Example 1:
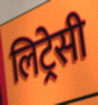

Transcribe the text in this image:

लिट्रेसी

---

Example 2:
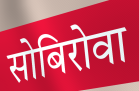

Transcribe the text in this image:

सोबिरोवा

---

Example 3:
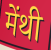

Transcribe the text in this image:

मेंथी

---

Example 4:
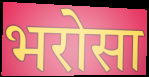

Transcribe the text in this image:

भरोसा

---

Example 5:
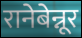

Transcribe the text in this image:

रानेबेन्नूर